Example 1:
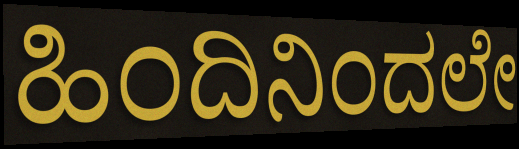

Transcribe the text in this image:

ಹಿಂದಿನಿಂದಲೇ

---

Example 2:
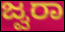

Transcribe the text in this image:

ಜ್ವರಾ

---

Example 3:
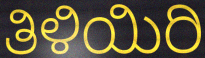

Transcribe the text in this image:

ತಿಳಿಯಿರಿ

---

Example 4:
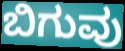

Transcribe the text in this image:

ಬಿಗುವು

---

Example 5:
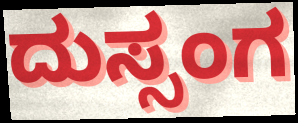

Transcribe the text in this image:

ದುಸ್ಸಂಗ